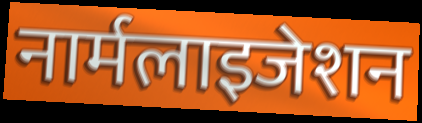
नार्मलाइजेशन